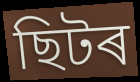
ছিটৰ